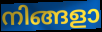
നിങ്ങളാ